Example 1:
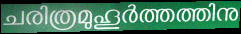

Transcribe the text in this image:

ചരിത്രമുഹൂർത്തത്തിനു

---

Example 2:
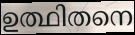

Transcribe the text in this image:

ഉത്ഥിതനെ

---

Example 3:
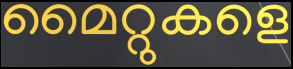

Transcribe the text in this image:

മൈറ്റുകളെ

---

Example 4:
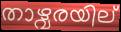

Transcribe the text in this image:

താഴ്വരയില്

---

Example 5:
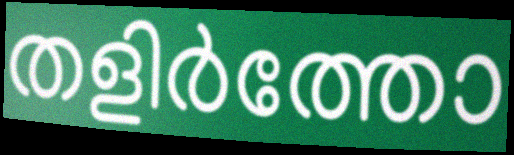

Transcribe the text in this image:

തളിർത്തോ